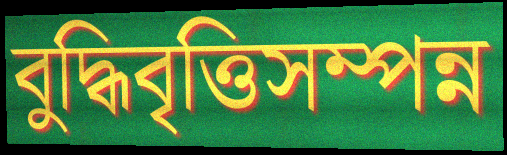
বুদ্ধিবৃত্তিসম্পন্ন